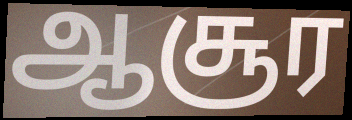
ஆசூர